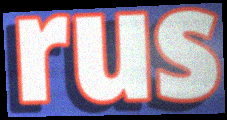
rus